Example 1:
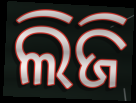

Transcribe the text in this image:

ଲିଜି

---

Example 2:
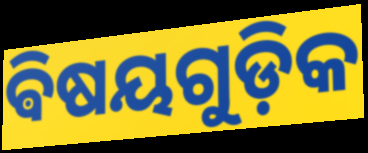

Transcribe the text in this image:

ଵିଷୟଗୁଡ଼ିକ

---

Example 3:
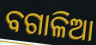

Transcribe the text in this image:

ବଗାଳିଆ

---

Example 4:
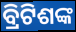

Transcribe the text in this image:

ବ୍ରିଟିଶଙ୍କ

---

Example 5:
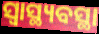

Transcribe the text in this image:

ସ୍ଵାସ୍ଥ୍ୟବସ୍ଥା